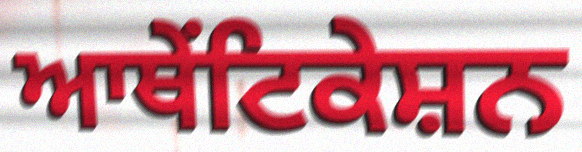
ਆਥੇਂਟਿਕੇਸ਼ਨ